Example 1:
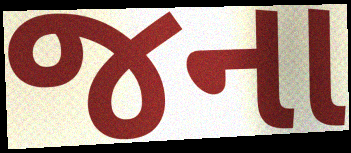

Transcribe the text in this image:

જના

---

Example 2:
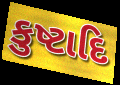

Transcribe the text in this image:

કુષ્ટાદિ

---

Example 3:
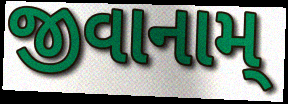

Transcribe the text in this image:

જીવાનામ્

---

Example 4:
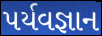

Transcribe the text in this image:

પર્યવજ્ઞાન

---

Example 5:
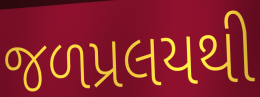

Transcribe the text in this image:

જળપ્રલયથી